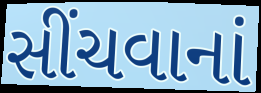
સીંચવાનાં